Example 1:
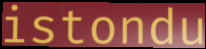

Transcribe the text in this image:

istondu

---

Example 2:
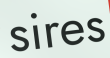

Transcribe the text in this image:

sires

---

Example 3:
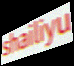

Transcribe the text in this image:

shailiyu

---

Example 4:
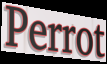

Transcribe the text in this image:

Perrot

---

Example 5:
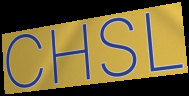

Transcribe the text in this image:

CHSL